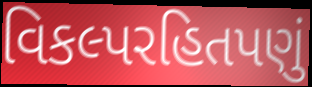
વિકલ્પરહિતપણું